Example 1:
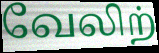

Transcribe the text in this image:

வேலிற்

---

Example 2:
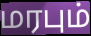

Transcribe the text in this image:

மரபும்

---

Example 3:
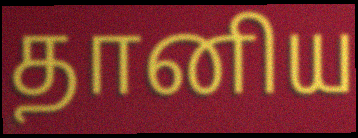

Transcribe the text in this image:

தானிய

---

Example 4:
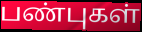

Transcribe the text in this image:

பண்புகள்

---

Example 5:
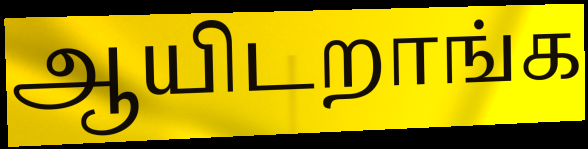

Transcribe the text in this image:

ஆயிடறாங்க